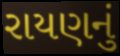
રાયણનું